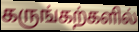
கருங்கற்களில்